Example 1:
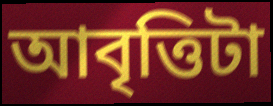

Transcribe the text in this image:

আবৃত্তিটা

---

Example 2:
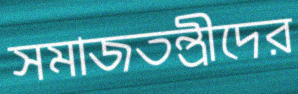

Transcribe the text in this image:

সমাজতন্ত্রীদের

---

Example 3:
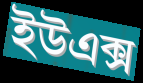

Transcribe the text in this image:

ইউএক্স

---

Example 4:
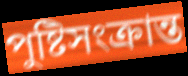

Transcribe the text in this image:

পুষ্টিসংক্রান্ত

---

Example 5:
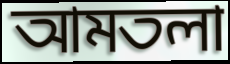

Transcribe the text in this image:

আমতলা